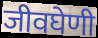
जीवघेणी